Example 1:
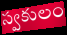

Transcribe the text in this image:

స్వకులం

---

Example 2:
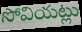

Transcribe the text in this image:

సోవియట్లు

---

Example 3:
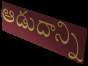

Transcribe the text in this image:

ఆడుదాన్ని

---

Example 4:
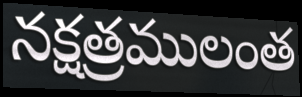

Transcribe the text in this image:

నక్షత్రములంత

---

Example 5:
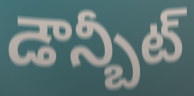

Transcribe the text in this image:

డౌన్బీట్